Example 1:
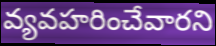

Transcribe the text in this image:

వ్యవహరించేవారని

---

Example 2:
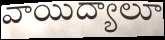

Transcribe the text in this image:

వాయిద్యాలూ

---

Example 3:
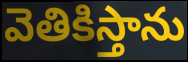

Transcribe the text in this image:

వెతికిస్తాను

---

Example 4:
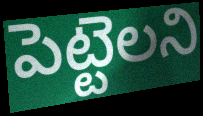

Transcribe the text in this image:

పెట్టెలని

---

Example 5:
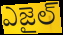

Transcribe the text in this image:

ఎజైల్